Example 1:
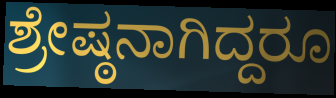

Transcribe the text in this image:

ಶ್ರೇಷ್ಠನಾಗಿದ್ದರೂ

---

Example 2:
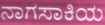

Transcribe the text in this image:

ನಾಗಸಾಕಿಯ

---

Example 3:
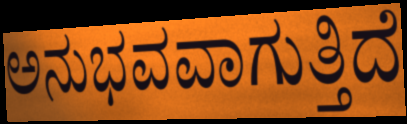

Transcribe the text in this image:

ಅನುಭವವಾಗುತ್ತಿದೆ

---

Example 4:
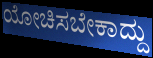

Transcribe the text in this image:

ಯೋಚಿಸಬೇಕಾದ್ದು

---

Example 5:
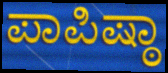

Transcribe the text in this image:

ಪಾಪಿಷ್ಠಾ